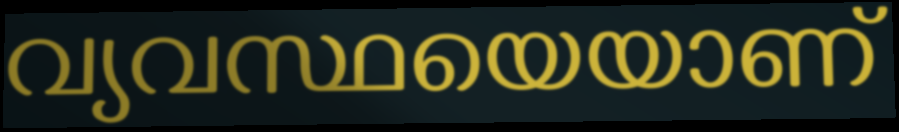
വ്യവസ്ഥയെയാണ്